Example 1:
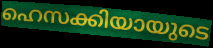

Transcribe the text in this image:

ഹെസക്കിയായുടെ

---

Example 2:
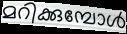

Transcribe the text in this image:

മറിക്കുമ്പോൾ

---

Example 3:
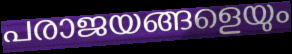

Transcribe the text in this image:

പരാജയങ്ങളെയും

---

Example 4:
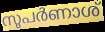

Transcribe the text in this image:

സുപർണാശ്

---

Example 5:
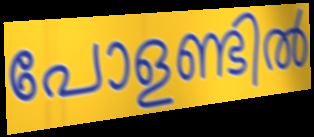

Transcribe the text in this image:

പോളണ്ടിൽ